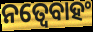
ନତ୍ୱେବାହଂ